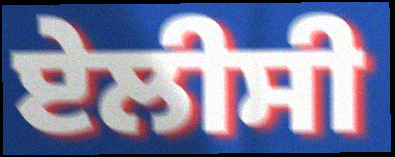
ਏਲੀਸੀ